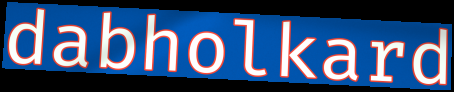
dabholkard